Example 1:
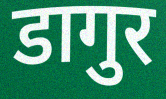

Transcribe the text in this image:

डागुर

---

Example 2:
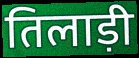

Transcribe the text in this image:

तिलाड़ी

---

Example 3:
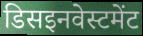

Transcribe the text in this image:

डिसइनवेस्टमेंट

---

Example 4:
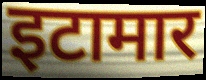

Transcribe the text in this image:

इटामार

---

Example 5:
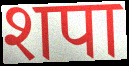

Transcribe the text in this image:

शपा